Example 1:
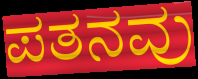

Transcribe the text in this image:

ಪತನವು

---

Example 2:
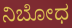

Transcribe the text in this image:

ನಿಬೋಧ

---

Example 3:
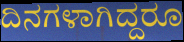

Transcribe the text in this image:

ದಿನಗಳಾಗಿದ್ದರೂ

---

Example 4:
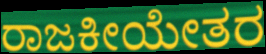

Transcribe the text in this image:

ರಾಜಕೀಯೇತರ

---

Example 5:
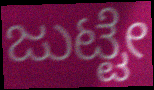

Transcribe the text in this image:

ಜುಟ್ಟೇ